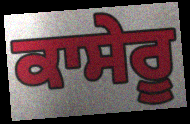
ਕਾਸੇਰੂ